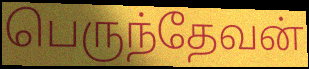
பெருந்தேவன்